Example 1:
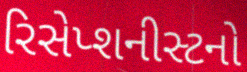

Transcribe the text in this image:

રિસેપ્શનીસ્ટનો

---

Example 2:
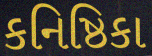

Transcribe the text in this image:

કનિષ્ઠિકા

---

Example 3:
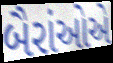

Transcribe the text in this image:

બૈરાંઓએ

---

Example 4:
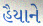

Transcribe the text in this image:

હૈયાને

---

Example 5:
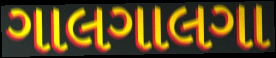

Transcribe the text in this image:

ગાલગાલગા